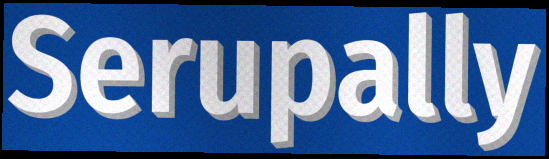
Serupally